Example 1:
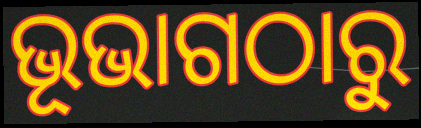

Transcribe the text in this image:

ଭୂଭାଗଠାରୁ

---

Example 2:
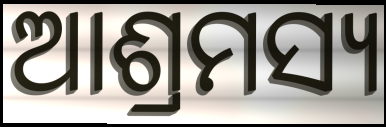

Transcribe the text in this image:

ଆଶ୍ରମସ୍ୟ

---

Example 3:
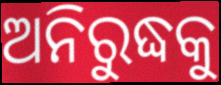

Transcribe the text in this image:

ଅନିରୁଦ୍ଧକୁ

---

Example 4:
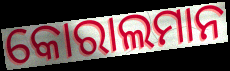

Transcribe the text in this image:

କୋରାଲମାନ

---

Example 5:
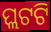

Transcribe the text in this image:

ପ୍ଲଟଟି